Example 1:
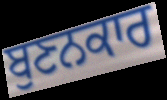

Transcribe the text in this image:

ਬੁਣਨਕਾਰ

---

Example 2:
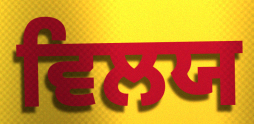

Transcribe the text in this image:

ਵਿਲਯ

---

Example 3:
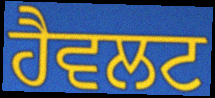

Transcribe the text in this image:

ਹੈਵਲਟ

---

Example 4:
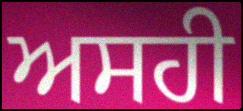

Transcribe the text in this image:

ਅਸਹੀ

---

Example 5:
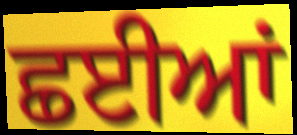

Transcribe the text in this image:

ਛਈਆਂ